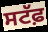
ਸਟੱਫ਼